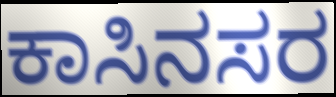
ಕಾಸಿನಸರ